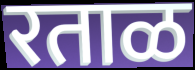
रताळ